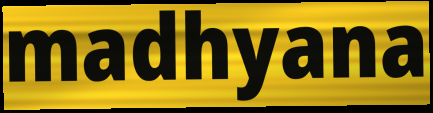
madhyana